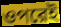
ওপরেই